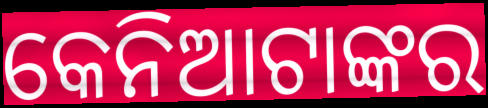
କେନିଆଟାଙ୍କର